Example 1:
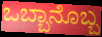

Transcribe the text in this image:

ಒಬ್ಬಾನೊಬ್ಬ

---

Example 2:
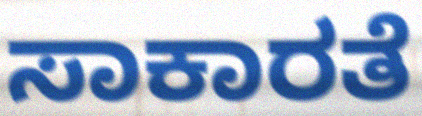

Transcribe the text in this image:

ಸಾಕಾರತೆ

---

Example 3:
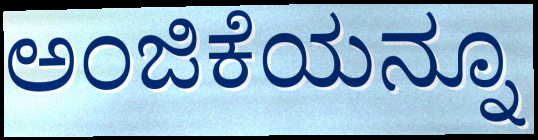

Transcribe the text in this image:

ಅಂಜಿಕೆಯನ್ನೂ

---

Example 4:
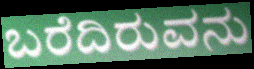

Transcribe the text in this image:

ಬರೆದಿರುವನು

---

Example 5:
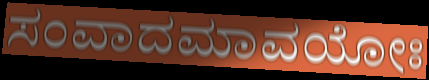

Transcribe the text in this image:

ಸಂವಾದಮಾವಯೋಃ